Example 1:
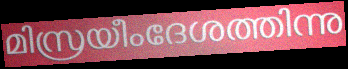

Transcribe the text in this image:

മിസ്രയീംദേശത്തിന്നു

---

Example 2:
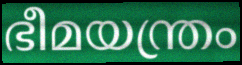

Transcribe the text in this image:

ഭീമയന്ത്രം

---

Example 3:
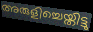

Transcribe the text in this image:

അരുളിച്ചെയ്തിട്ടു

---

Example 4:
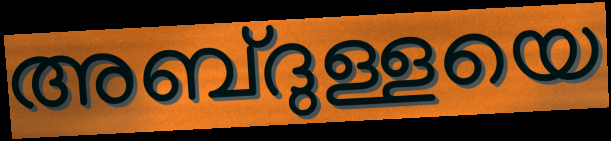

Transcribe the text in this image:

അബ്ദുള്ളയെ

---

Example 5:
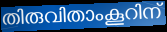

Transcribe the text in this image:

തിരുവിതാംകൂറിന്